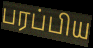
பரப்பிய